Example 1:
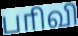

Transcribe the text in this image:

பரிவி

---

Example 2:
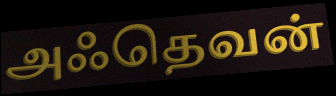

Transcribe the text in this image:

அஃதெவன்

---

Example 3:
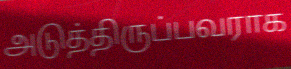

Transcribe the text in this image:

அடுத்திருப்பவராக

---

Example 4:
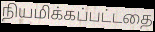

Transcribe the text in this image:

நியமிக்கப்பட்டதை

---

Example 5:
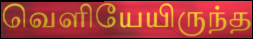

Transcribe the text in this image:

வெளியேயிருந்த